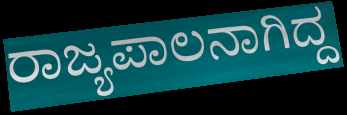
ರಾಜ್ಯಪಾಲನಾಗಿದ್ದ